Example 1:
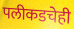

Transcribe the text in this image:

पलीकडचेही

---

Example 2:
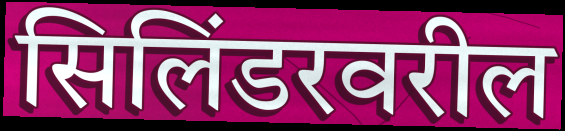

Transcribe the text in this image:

सिलिंडरवरील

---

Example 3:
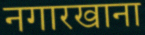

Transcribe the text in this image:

नगारखाना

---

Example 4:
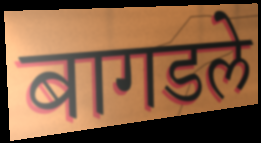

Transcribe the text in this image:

बागडले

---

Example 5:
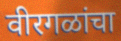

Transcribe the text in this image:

वीरगळांचा